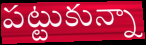
పట్టుకున్నా